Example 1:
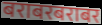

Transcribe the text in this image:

बराबरबराबर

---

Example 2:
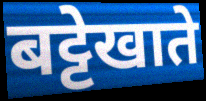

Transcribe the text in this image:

बट्टेखाते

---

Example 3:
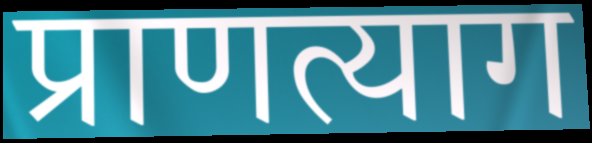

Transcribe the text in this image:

प्राणत्याग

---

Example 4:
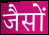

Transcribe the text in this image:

जैसों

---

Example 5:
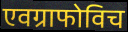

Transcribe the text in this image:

एवग्राफोविच